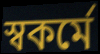
স্বকর্মে